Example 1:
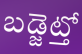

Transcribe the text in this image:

బడ్జెట్తో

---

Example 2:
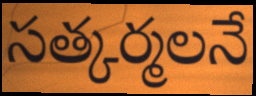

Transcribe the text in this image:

సత్కర్మలనే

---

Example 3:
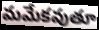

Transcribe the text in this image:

మమేకవుతూ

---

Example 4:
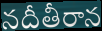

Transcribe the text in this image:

నదీతీరాన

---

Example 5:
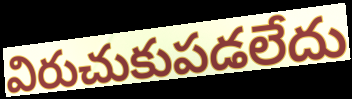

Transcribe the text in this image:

విరుచుకుపడలేదు